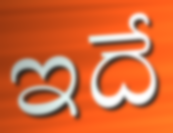
ఇదే